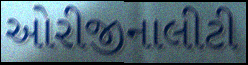
ઓરીજીનાલીટી